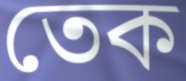
তেক